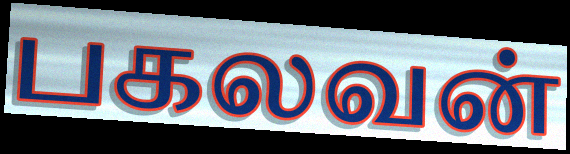
பகலவன்